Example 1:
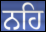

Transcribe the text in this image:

ਨਹਿ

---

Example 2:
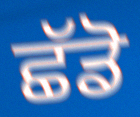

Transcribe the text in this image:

ਛੱਡੋ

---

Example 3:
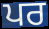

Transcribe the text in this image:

ਪਰ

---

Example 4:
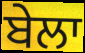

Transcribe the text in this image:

ਬੇਲਾ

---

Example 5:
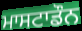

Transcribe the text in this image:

ਮਾਸਟਾਡੌਨ